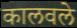
कालवले